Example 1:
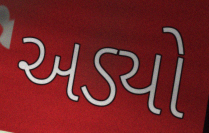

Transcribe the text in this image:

અડ્યો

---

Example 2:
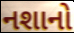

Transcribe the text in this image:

નશાનો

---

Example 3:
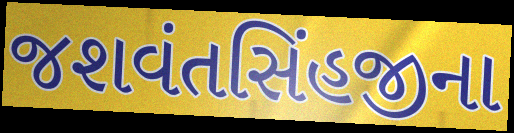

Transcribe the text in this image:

જશવંતસિંહજીના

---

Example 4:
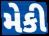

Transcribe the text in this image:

મેકી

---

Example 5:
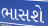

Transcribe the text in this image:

ભાસશે